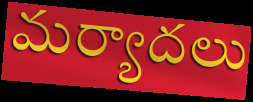
మర్యాదలు